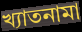
খ্যাতনামা